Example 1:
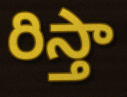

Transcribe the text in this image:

రిస్తా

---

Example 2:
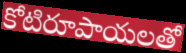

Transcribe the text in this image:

కోటిరూపాయలతో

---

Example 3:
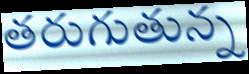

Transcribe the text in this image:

తరుగుతున్న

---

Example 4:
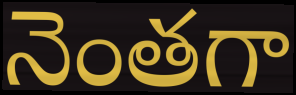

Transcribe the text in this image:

నెంతగా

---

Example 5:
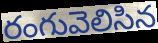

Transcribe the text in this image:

రంగువెలిసిన